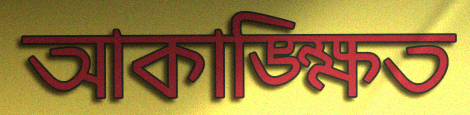
আকাঙ্ক্ষিত